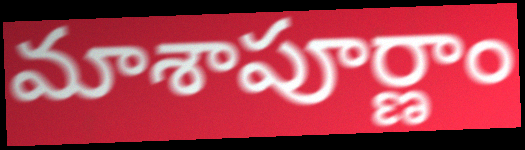
మాశాపూర్ణాం